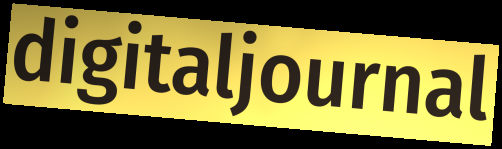
digitaljournal